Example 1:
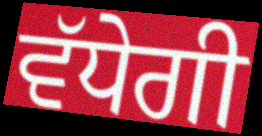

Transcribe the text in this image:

ਵੱਧੇਗੀ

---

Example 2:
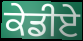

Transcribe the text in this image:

ਕੇਡੀਏ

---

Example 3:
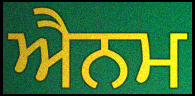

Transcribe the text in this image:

ਐਨਮ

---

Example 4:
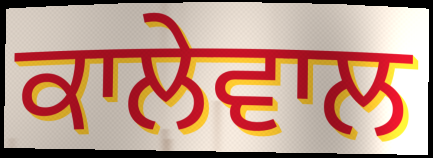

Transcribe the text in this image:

ਕਾਲੇਵਾਲ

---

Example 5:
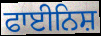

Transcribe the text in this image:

ਫਾਈਨਿਸ਼